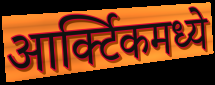
आर्क्टिकमध्ये